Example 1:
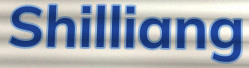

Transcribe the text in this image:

Shilliang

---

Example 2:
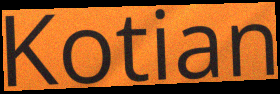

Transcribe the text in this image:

Kotian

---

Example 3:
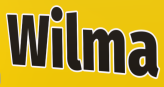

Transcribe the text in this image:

Wilma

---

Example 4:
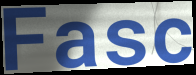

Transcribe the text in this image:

Fasc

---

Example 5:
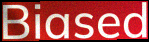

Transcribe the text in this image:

Biased